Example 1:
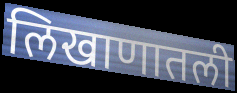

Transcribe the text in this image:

लिखाणातली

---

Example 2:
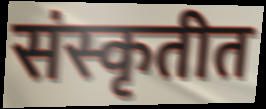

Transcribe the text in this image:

संस्कृतीत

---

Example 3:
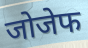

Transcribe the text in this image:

जोजेफ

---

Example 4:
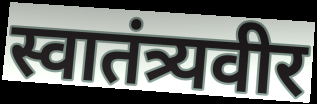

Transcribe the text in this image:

स्वातंत्र्यवीर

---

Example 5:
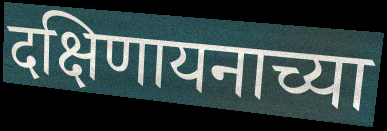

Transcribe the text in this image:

दक्षिणायनाच्या